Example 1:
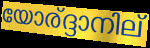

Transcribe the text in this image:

യോര്ദ്ദാനില്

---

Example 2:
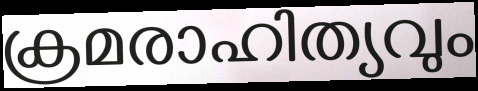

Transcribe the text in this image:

ക്രമരാഹിത്യവും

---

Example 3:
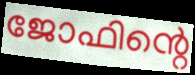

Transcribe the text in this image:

ജോഫിന്റെ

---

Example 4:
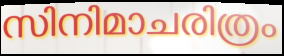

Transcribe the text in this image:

സിനിമാചരിത്രം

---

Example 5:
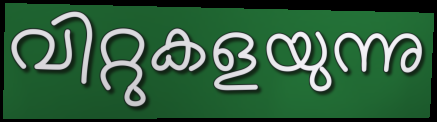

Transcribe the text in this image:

വിറ്റുകളയുന്നു